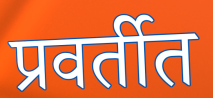
प्रवर्तीत